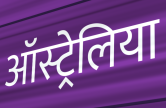
ऑस्‍ट्रेलिया